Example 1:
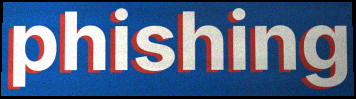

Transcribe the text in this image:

phishing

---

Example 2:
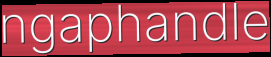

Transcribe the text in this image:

ngaphandle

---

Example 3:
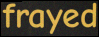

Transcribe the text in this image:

frayed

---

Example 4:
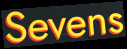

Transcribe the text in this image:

Sevens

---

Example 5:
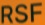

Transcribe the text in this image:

RSF